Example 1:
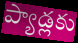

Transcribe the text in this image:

ప్యాడ్లకు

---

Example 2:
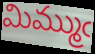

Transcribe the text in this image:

మిమ్ముఁ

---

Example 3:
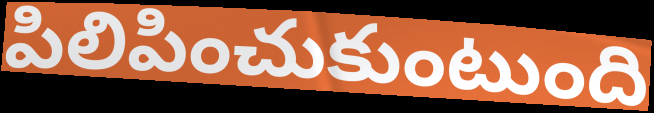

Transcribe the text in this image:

పిలిపించుకుంటుంది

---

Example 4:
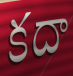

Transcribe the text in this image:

కదా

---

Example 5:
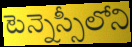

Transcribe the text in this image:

టెన్నెస్సీలోని